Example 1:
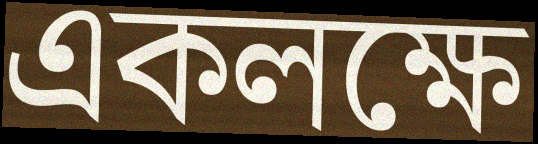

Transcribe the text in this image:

একলক্ষে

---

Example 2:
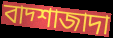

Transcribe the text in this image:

বাদ্শাজাদা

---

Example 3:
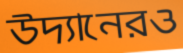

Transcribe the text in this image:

উদ্যানেরও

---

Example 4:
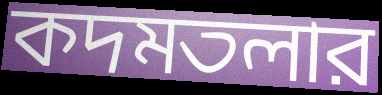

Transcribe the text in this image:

কদমতলার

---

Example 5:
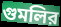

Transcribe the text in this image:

গুমলির